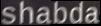
shabda